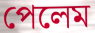
পেলেম